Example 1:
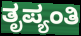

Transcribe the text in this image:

ತೃಪ್ಯಂತಿ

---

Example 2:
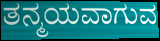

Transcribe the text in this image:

ತನ್ಮಯವಾಗುವ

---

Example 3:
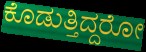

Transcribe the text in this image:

ಕೊಡುತ್ತಿದ್ದರೋ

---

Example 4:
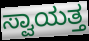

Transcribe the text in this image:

ಸ್ವಾಯತ್ತ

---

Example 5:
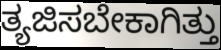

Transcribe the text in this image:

ತ್ಯಜಿಸಬೇಕಾಗಿತ್ತು